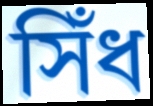
সিঁধ